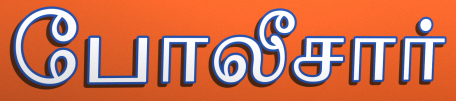
போலீசார்